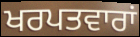
ਖਰਪਤਵਾਰਾਂ